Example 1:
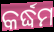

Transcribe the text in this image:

କର୍ଦ୍ଧମ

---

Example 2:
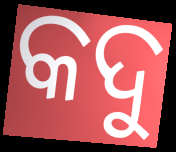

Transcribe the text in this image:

କଦୁ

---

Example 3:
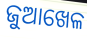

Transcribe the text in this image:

ଜୁଆଖେଳ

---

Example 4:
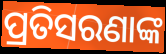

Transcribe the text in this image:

ପ୍ରତିସରଣାଙ୍କ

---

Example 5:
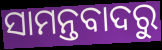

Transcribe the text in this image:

ସାମନ୍ତବାଦରୁ